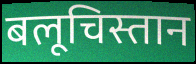
बलूचिस्‍तान